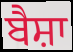
ਬੈਸ਼ਾ